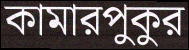
কামারপুকুর